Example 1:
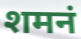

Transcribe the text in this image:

शमनं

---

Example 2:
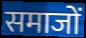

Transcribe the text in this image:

समाजों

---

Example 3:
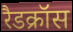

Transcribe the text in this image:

रैडक्रॉस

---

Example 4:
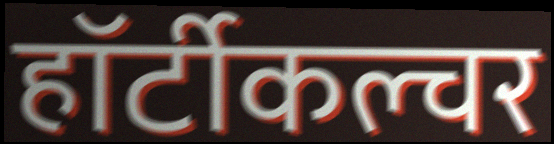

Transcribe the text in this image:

हॉर्टीकल्चर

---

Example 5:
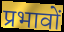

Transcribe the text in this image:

प्रभावों